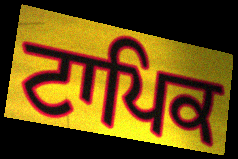
ਟਾਪਿਕ